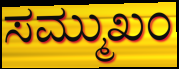
ಸಮ್ಮುಖಂ